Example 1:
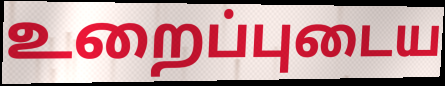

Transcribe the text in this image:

உறைப்புடைய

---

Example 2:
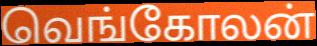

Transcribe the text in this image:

வெங்கோலன்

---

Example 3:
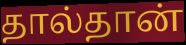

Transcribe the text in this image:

தால்தான்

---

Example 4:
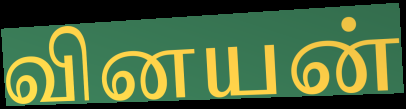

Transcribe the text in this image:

வினயன்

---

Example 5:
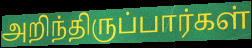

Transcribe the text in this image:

அறிந்திருப்பார்கள்